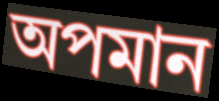
অপমান